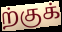
ற்குக்